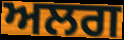
ਅਲਗ